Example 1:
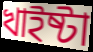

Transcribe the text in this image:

খাইষ্টা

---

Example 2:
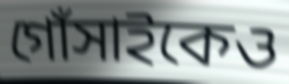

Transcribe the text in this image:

গোঁসাইকেও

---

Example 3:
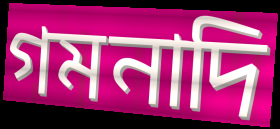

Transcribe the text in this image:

গমনাদি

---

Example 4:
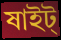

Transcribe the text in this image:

ষাইট্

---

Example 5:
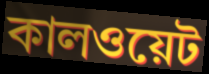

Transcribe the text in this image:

কালওয়েট